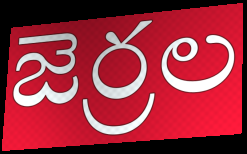
జెర్రల